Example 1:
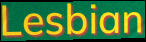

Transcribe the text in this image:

Lesbian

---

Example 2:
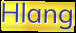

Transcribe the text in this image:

Hlang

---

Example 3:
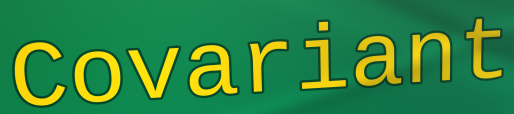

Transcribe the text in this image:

Covariant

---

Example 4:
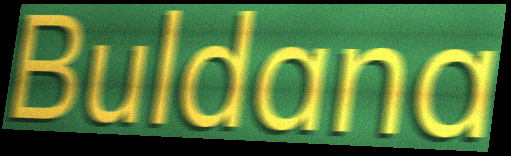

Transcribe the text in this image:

Buldana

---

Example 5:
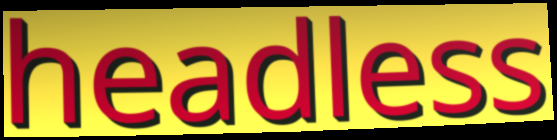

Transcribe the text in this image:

headless